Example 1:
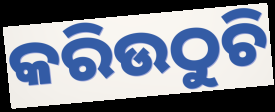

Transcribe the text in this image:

କରିଉଠୁଚି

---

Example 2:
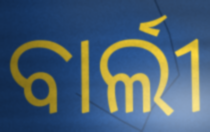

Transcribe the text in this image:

ବାର୍ଲୀ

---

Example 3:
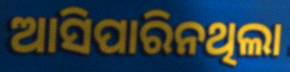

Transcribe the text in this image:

ଆସିପାରିନଥିଲା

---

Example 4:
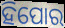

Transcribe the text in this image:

ହିପୋର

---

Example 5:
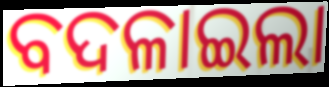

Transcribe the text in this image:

ବଦଳାଇଲା